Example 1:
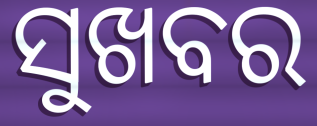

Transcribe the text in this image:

ସୁଖବର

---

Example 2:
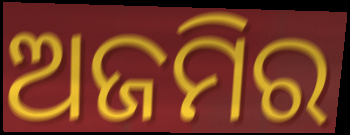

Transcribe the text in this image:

ଅଜମିର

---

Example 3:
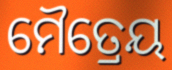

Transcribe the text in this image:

ମୈତ୍ରେୟ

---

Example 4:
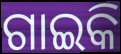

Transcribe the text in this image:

ଗାଇକି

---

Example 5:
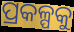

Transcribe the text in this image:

ପ୍ରକଳ୍ପକୁ